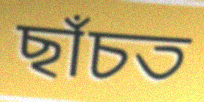
ছাঁচত